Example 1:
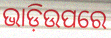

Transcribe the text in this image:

ଭାଡ଼ିଉପରେ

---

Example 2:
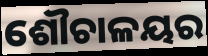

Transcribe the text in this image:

ଶୌଚାଳୟର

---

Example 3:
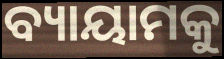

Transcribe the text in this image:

ବ୍ୟାୟାମକୁ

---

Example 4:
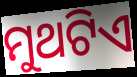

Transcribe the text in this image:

ମୁଥଟିଏ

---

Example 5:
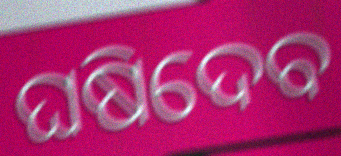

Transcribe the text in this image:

ଘଷିଦେବ